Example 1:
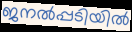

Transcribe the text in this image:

ജനൽപ്പടിയിൽ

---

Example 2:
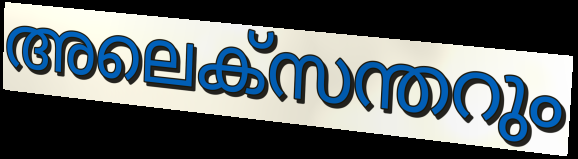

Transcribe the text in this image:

അലെക്സന്തറും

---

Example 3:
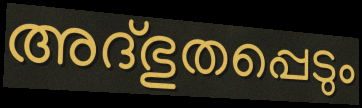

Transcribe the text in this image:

അദ്ഭുതപ്പെടും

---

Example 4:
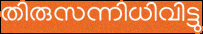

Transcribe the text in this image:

തിരുസന്നിധിവിട്ടു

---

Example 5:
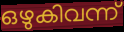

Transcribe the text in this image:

ഒഴുകിവന്ന്